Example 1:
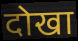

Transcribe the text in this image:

दोखा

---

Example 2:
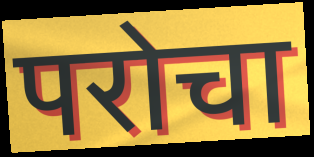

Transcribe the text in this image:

परोचा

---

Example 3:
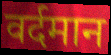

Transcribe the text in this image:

वर्दमान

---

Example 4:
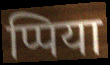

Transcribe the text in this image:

प्पिया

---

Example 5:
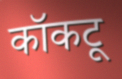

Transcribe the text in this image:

कॉकटू